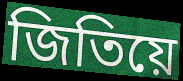
জিতিয়ে